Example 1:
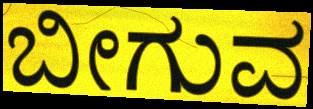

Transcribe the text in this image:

ಬೀಗುವ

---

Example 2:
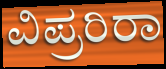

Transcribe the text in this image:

ವಿಪ್ರರಿರಾ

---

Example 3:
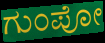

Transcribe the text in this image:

ಗುಂಪೋ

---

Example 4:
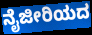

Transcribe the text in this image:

ನೈಜೀರಿಯದ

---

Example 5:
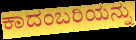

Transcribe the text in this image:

ಕಾದಂಬರಿಯನ್ನು